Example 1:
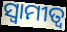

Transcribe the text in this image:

ସ୍ଵାମୀତ୍ବ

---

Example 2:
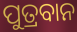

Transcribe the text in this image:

ପୁତ୍ରବାନ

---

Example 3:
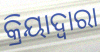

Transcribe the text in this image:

କ୍ରିୟାଦ୍ଵାରା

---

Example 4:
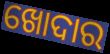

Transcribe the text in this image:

ଖୋଦାର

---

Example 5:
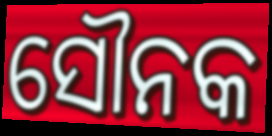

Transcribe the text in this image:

ସୌନକ